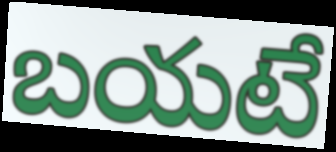
బయటే